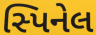
સ્પિનેલ